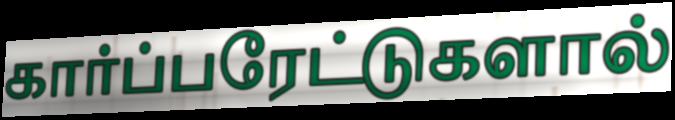
கார்ப்பரேட்டுகளால்